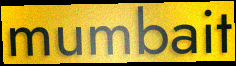
mumbait